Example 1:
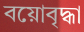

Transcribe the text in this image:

বয়োবৃদ্ধা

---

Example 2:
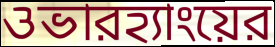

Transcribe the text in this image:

ওভারহ্যাংয়ের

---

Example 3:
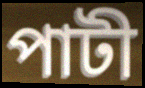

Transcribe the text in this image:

পাটী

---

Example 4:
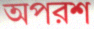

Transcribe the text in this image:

অপরশ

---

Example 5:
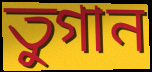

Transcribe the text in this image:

তুগান